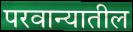
परवान्यातील